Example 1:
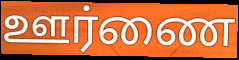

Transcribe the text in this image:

ஊர்ணை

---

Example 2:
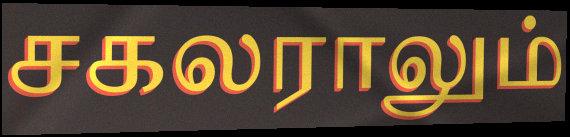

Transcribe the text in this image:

சகலராலும்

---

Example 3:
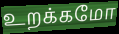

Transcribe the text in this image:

உறக்கமோ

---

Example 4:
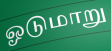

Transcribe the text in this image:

ஓடுமாறு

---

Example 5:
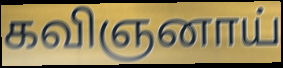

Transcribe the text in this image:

கவிஞனாய்